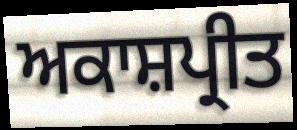
ਅਕਾਸ਼ਪ੍ਰੀਤ